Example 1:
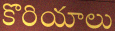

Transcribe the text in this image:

కొరియాలు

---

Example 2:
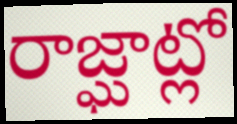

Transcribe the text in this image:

రాజ్ఘాట్లో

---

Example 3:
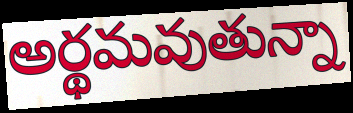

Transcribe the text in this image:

అర్థమవుతున్నా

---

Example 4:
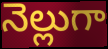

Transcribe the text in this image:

నెల్లుగా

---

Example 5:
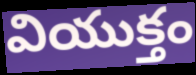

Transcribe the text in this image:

వియుక్తం